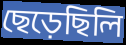
ছেড়েছিলি